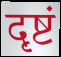
दृष्टं